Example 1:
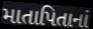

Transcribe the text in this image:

માતાપિતાનાં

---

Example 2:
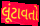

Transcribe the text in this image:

લૂંટાવતો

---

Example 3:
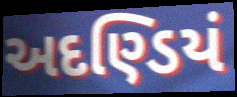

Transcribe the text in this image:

અદણ્ડિયં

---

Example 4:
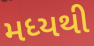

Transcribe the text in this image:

મધ્યથી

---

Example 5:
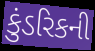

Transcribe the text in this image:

કુંડરિકની